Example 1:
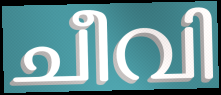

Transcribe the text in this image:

ചീവി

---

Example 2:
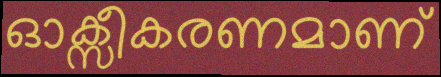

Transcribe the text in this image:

ഓക്സീകരണമാണ്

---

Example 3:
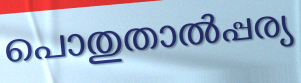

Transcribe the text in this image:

പൊതുതാൽപ്പര്യ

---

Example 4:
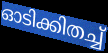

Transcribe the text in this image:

ഓടിക്കിതച്ച്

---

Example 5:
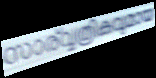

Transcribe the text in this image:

സാര്വ്വത്രികവുമായ